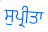
ਸੁਪ੍ਰੀਤਾ